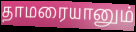
தாமரையானும்